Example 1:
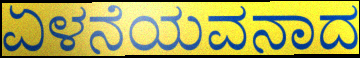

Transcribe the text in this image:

ಏಳನೆಯವನಾದ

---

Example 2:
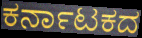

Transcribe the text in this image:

ಕರ್ನಾಟಕದ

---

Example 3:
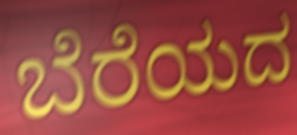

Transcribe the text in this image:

ಬೆರೆಯದ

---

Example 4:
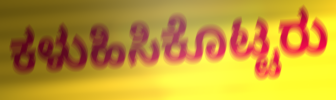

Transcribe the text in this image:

ಕಳುಹಿಸಿಕೊಟ್ಟರು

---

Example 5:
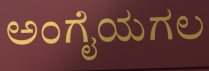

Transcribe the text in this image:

ಅಂಗೈಯಗಲ